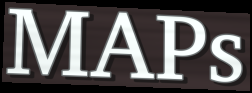
MAPs